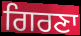
ਗਿਰਣਾ